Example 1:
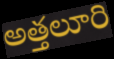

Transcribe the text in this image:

అత్తలూరి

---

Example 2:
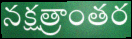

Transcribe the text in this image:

నక్షత్రాంతర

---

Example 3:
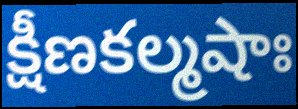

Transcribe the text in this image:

క్షీణకల్మషాః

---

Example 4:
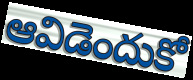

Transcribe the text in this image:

ఆవిడెందుకో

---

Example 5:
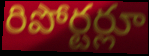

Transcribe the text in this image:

రిపోర్టర్లూ